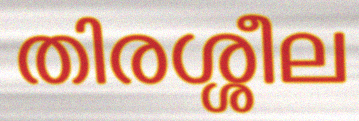
തിരശ്ശീല